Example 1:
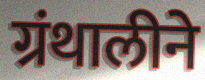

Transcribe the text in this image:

ग्रंथालीने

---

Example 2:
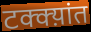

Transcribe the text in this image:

टक्क्य़ांत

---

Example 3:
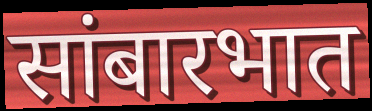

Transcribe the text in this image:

सांबारभात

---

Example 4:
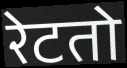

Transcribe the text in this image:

रेटतो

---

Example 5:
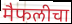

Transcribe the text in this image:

मैफलीचा